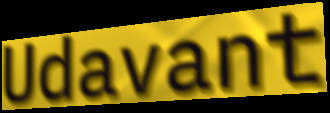
Udavant